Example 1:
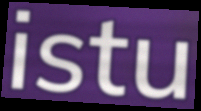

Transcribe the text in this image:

istu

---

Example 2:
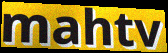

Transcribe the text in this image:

mahtv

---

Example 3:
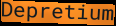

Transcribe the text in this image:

Depretium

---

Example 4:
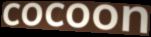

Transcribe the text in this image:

cocoon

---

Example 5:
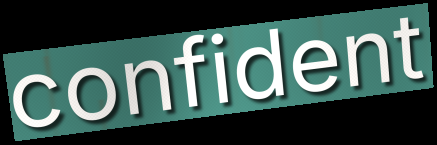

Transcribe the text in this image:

confident